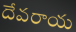
దేవరాయ